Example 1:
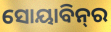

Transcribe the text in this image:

ସୋୟାବିନ୍‌ର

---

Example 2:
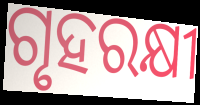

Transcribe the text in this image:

ଗୃହରକ୍ଷୀ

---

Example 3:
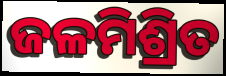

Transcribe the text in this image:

ଜଳମିଶ୍ରିତ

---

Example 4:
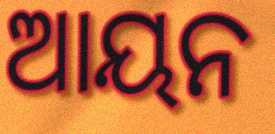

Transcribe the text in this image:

ଆୟନ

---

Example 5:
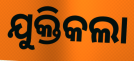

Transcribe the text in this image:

ଯୁକ୍ତିକଲା